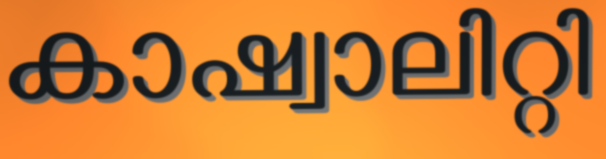
കാഷ്വാലിറ്റി